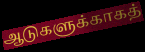
ஆடுகளுக்காகத்